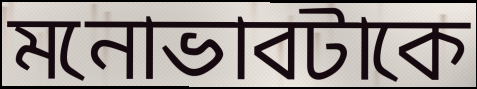
মনোভাবটাকে